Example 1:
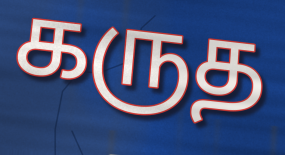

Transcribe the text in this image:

கருத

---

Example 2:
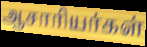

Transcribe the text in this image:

ஆசாரியர்கள்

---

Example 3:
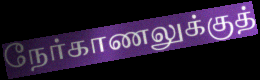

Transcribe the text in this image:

நேர்காணலுக்குத்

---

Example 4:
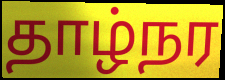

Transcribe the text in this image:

தாழ்நர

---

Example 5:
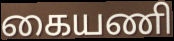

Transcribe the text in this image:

கையணி